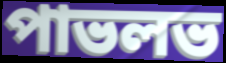
পাভলভ